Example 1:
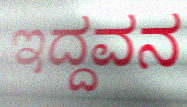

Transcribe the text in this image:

ಇದ್ದವನ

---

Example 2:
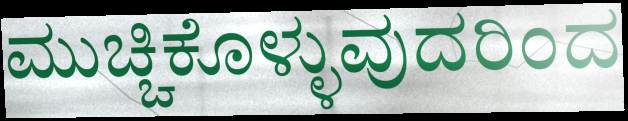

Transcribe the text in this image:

ಮುಚ್ಚಿಕೊಳ್ಳುವುದರಿಂದ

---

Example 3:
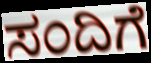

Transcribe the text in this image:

ಸಂದಿಗೆ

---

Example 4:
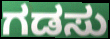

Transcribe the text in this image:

ಗಡಸು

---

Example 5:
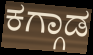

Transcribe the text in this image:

ಕಗ್ಗಾಡ